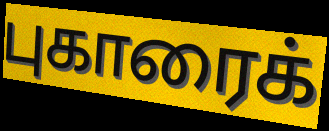
புகாரைக்